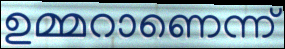
ഉമ്മറാണെന്ന്